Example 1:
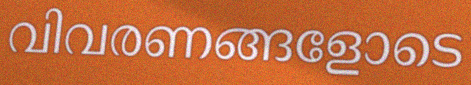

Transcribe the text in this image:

വിവരണങ്ങളോടെ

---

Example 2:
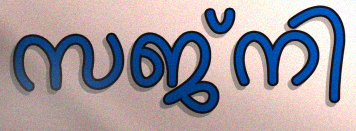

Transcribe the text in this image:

സജ്നി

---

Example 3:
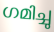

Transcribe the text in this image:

ഗമിച്ചു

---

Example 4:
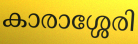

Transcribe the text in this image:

കാരാശ്ശേരി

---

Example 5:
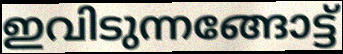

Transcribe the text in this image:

ഇവിടുന്നങ്ങോട്ട്